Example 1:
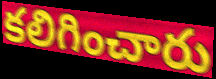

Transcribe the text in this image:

కలిగించారు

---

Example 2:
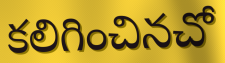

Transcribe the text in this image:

కలిగించినచో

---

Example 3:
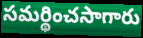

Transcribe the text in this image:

సమర్థించసాగారు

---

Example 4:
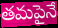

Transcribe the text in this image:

తమపైనే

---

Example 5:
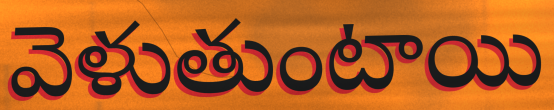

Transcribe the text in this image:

వెళుతుంటాయి